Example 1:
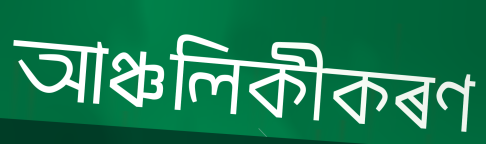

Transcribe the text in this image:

আঞ্চলিকীকৰণ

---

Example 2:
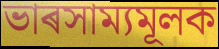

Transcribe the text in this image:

ভাৰসাম্যমূলক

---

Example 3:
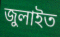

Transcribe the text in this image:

জুলাইত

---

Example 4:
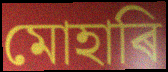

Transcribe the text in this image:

মোহাৰি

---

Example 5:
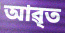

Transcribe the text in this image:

আৱৃত